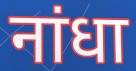
नांधा